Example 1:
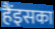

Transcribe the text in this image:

हैंइसका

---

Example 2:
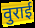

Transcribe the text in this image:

वुराई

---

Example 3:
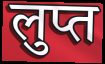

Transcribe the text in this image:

लुप्‍त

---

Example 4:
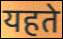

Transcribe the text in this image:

यहते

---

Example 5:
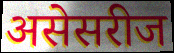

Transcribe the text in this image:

असेसरीज